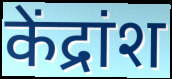
केंद्रांश